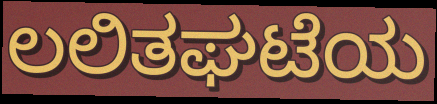
ಲಲಿತಘಟೆಯ